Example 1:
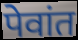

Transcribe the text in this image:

पेवांत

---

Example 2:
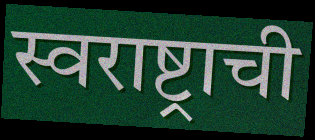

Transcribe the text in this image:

स्वराष्ट्राची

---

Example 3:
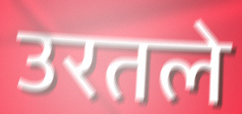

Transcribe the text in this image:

उरतले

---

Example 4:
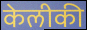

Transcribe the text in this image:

केलीकी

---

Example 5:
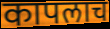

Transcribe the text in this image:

कापलाच